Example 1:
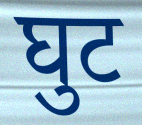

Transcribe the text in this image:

घुट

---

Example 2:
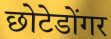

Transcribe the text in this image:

छोटेडोंगर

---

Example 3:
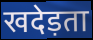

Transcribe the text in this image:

खदेड़ता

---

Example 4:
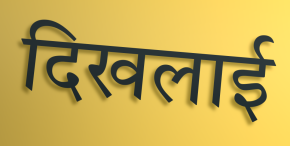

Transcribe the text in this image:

दिखलाई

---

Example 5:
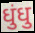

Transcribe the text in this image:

धुंधु